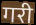
गरी